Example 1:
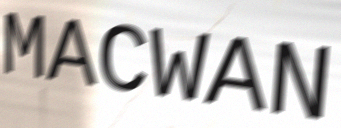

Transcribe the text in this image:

MACWAN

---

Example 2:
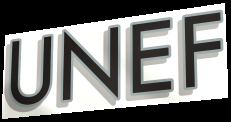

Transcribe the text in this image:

UNEF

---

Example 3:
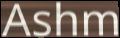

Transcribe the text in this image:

Ashm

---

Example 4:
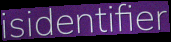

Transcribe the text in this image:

isidentifier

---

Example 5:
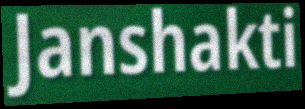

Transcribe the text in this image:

Janshakti